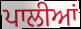
ਪਾਲੀਆਂ